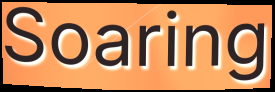
Soaring